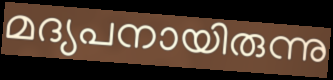
മദ്യപനായിരുന്നു